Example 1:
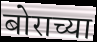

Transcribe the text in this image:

बोराच्या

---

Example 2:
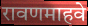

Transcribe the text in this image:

रावणमाहवे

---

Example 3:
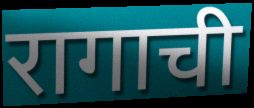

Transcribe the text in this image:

रागाची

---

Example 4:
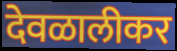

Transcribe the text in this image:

देवळालीकर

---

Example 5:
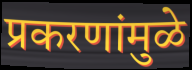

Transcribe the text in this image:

प्रकरणांमुळे